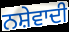
ਨਸ਼ੇਵਾਦੀ